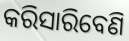
କରିସାରିବେଣି